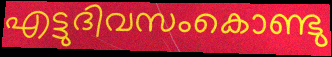
എട്ടുദിവസംകൊണ്ടു